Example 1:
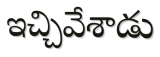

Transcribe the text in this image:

ఇచ్చివేశాడు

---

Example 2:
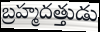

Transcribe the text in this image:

బ్రహ్మదత్తుడు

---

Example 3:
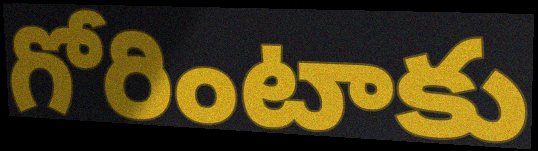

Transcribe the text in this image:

గోరింటాకు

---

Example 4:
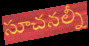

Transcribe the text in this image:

సూచనల్నీ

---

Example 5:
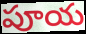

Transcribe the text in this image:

పూయ